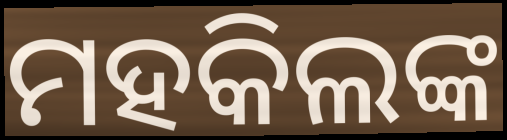
ମହକିଲଙ୍କ